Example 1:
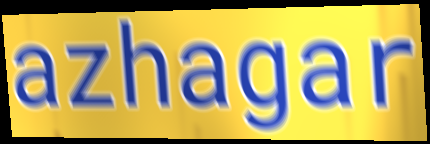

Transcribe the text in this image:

azhagar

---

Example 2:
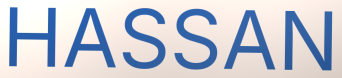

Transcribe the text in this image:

HASSAN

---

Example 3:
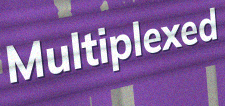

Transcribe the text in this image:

Multiplexed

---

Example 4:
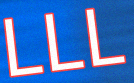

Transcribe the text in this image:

LLL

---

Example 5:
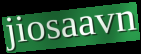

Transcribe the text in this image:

jiosaavn